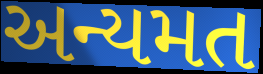
અન્યમત